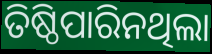
ତିଷ୍ଠିପାରିନଥିଲା